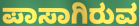
ಪಾಸಾಗಿರುವ